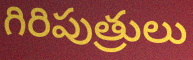
గిరిపుత్రులు